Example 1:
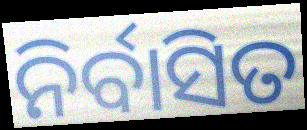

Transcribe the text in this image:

ନିର୍ବାସିତ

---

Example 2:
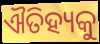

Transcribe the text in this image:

ଐତିହ୍ୟକୁ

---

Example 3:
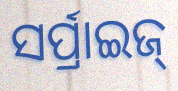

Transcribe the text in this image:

ସର୍ପ୍ରାଇଜ୍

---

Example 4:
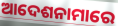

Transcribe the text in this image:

ଆଦେଶନାମାରେ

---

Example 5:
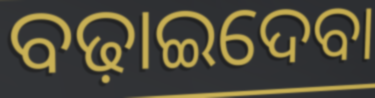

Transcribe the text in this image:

ବଢ଼ାଇଦେବା